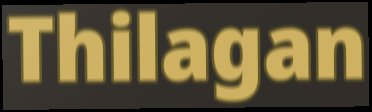
Thilagan